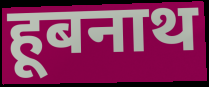
हूबनाथ